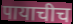
पायाचीच